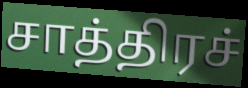
சாத்திரச்